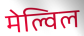
मेल्विल